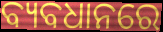
ବ୍ୟବଧାନରେ